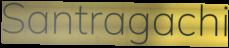
Santragachi